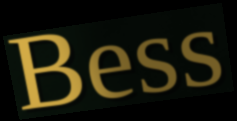
Bess